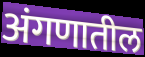
अंगणातील